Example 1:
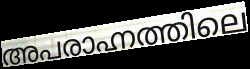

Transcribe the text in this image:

അപരാഹ്നത്തിലെ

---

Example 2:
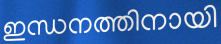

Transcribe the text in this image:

ഇന്ധനത്തിനായി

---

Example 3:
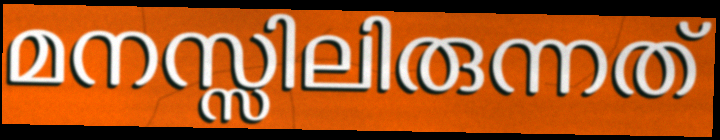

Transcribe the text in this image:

മനസ്സിലിരുന്നത്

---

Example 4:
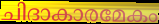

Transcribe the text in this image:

ചിദാകാരമേകം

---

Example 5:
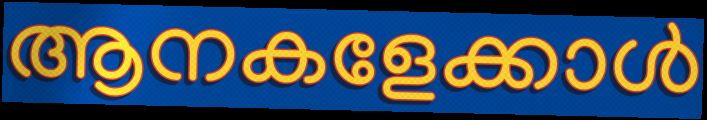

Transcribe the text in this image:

ആനകളേക്കാൾ